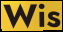
Wis